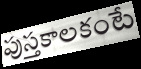
పుస్తకాలకంటే